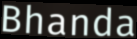
Bhanda